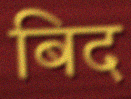
बिद